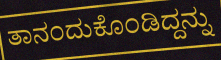
ತಾನಂದುಕೊಂಡಿದ್ದನ್ನು